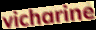
vicharine